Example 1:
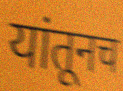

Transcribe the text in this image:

यांतूनच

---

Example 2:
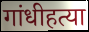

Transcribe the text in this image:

गांधीहत्या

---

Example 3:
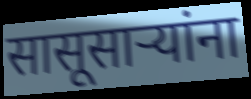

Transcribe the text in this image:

सासूसाऱ्यांना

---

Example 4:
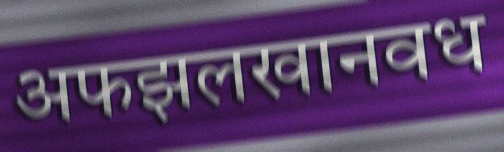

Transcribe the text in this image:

अफझलखानवध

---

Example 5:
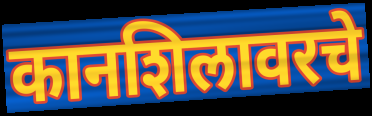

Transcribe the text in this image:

कानशिलावरचे